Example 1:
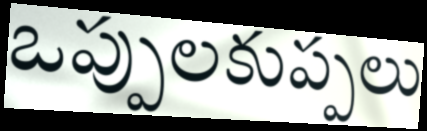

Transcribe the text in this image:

ఒప్పులకుప్పలు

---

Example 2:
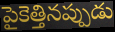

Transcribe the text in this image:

పైకెత్తినప్పుడు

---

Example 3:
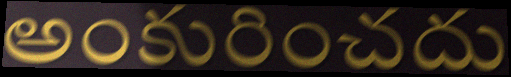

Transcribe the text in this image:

అంకురించదు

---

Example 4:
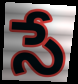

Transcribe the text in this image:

సే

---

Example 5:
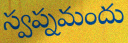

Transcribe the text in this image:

స్వప్నమందు